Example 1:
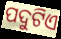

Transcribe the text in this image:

ପଦୁଟିଏ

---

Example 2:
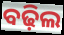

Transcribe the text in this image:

ବଢ଼ିଲ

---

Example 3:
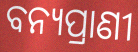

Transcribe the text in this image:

ବନ୍ୟପ୍ରାଣୀ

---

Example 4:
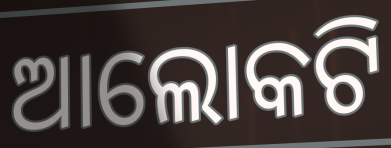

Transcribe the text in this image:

ଆଲୋକଟି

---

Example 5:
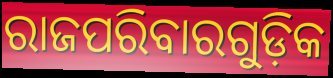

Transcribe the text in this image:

ରାଜପରିବାରଗୁଡ଼ିକ